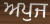
ਅਪੁਜ